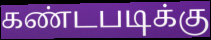
கண்டபடிக்கு